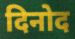
दिनोद